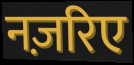
नज़रिए